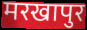
मरखापुर